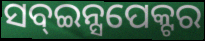
ସବ୍ଇନ୍ସପେକ୍ଟର